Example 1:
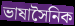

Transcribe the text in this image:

ভাষাসৈনিক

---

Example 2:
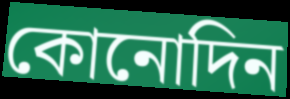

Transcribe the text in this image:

কোনোদিন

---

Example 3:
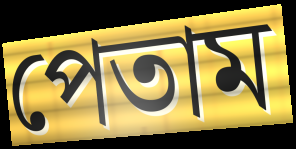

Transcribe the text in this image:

পেতাম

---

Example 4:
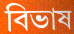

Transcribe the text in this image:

বিভাষ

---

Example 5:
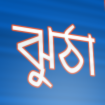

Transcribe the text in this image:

ঝুঠা